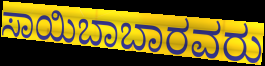
ಸಾಯಿಬಾಬಾರವರು